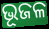
ଭୂଜଳ